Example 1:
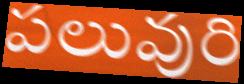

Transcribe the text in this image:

పలువురి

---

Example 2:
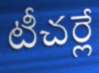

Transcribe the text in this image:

టీచర్లే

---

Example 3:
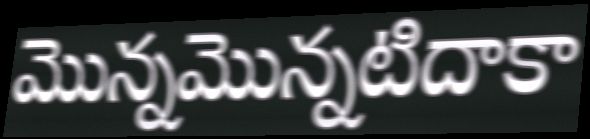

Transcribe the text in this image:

మొన్నమొన్నటిదాకా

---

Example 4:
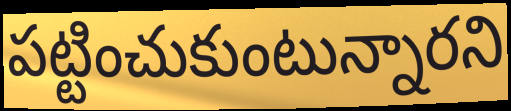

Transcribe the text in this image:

పట్టించుకుంటున్నారని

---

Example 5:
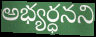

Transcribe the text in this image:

అభ్యర్ధనని